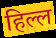
हिल्ल